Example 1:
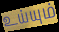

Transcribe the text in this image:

உய்யும்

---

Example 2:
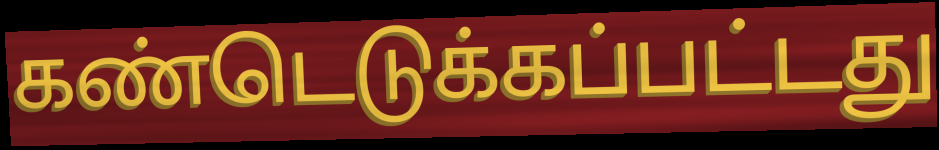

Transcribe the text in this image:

கண்டெடுக்கப்பட்டது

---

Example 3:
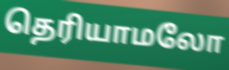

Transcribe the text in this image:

தெரியாமலோ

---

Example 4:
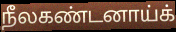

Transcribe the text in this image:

நீலகண்டனாய்க்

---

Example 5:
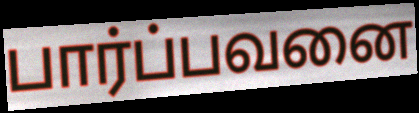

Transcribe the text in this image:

பார்ப்பவனை